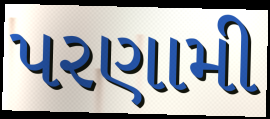
પરણામી